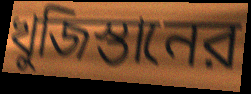
খুজিস্তানের